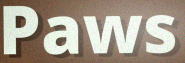
Paws